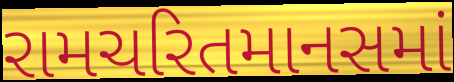
રામચરિતમાનસમાં